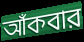
আঁকবার